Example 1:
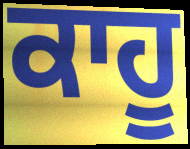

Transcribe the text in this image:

ਕਾਹੂ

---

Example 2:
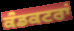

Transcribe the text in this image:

ਕੰਡਕਟਰਾਂ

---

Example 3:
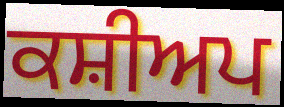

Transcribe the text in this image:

ਕਸ਼ੀਅਪ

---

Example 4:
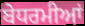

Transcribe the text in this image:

ਬੇਧਰਮੀਆਂ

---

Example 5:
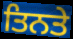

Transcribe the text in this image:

ਤਿਨਤੇ